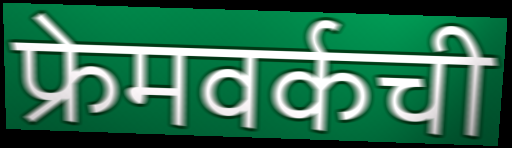
फ्रेमवर्कची